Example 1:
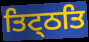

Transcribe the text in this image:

ਤਿਟ੍ਠਤਿ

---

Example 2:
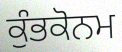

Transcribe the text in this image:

ਕੁੰਭਕੋਨਮ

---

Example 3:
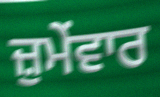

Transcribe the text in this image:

ਜ਼ੁਮੇਂਵਾਰ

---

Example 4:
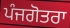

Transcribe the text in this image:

ਪੰਜਗੋਤਰਾ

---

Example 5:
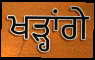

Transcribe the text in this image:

ਖੜ੍ਹਾਂਗੇ